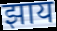
झाय